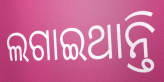
ଲଗାଇଥାନ୍ତି